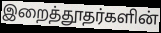
இறைத்தூதர்களின்